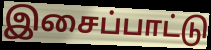
இசைப்பாட்டு